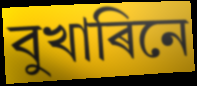
বুখাৰিনে